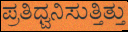
ಪ್ರತಿಧ್ವನಿಸುತ್ತಿತ್ತು